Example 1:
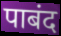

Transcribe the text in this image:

पाबंद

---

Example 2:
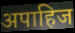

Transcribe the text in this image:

अपाहिज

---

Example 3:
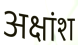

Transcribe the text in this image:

अक्षांश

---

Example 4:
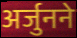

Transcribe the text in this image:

अर्जुनने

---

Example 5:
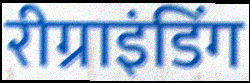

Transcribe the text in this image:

रीग्राइंडिंग